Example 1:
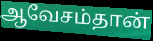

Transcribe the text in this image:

ஆவேசம்தான்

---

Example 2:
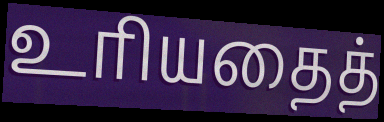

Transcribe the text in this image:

உரியதைத்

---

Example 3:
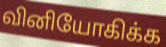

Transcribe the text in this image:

வினியோகிக்க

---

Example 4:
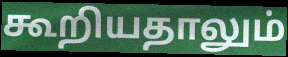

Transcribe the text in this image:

கூறியதாலும்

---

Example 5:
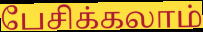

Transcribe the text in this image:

பேசிக்கலாம்